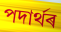
পদাৰ্থৰ